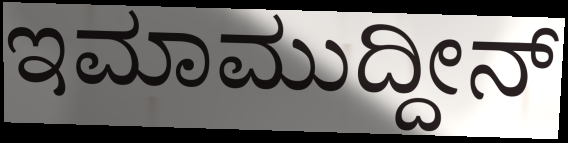
ಇಮಾಮುದ್ದೀನ್